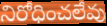
నిరోధించలేవు